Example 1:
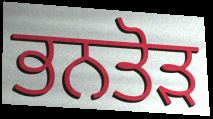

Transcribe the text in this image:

ਭਨਤੋੜ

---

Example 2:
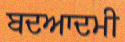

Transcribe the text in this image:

ਬਦਆਦਮੀ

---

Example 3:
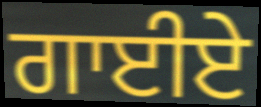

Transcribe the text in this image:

ਗਾਈਏ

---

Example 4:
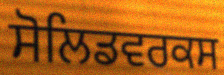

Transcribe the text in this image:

ਸੋਲਿਡਵਰਕਸ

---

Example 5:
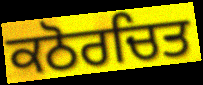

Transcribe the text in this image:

ਕਠੋਰਚਿਤ